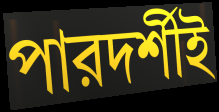
পারদর্শীই